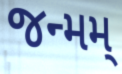
જન્મમ્